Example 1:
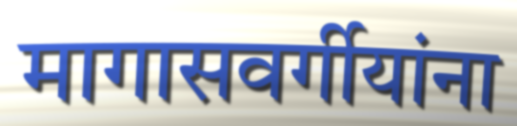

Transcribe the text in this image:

मागासवर्गीयांना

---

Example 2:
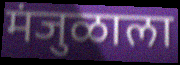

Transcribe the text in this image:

मंजुळाला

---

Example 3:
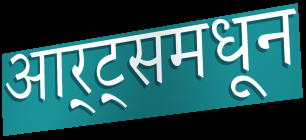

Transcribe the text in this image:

आर्ट्समधून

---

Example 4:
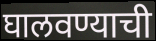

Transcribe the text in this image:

घालवण्याची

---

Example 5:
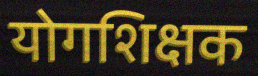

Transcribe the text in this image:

योगशिक्षक